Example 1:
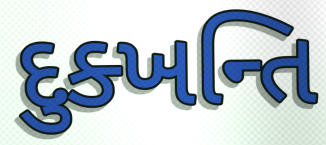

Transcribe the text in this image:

દુક્ખન્તિ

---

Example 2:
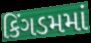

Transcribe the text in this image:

કિંગડમમાં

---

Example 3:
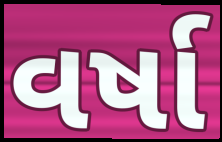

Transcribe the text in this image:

વર્ષા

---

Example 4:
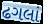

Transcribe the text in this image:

ઢગલાં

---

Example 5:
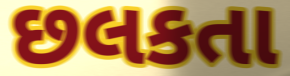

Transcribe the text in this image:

છલકતા